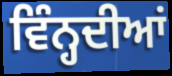
ਵਿੰਨ੍ਹਦੀਆਂ